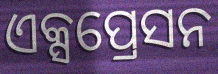
ଏକ୍ସପ୍ରେସନ